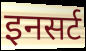
इनसर्ट